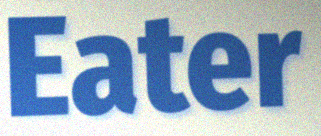
Eater